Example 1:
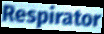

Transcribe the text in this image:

Respirator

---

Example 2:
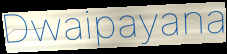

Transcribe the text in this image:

Dwaipayana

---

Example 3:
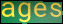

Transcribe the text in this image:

ages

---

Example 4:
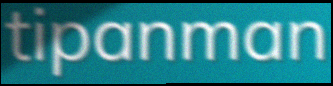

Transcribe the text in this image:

tipanman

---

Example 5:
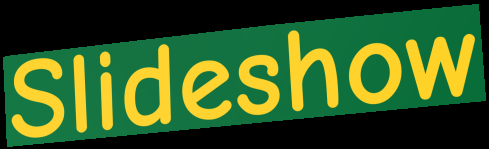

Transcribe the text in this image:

Slideshow